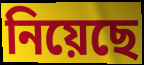
নিয়েছে